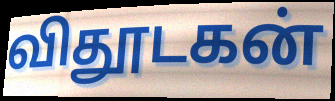
விதூடகன்